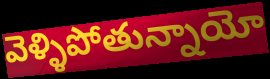
వెళ్ళిపోతున్నాయో